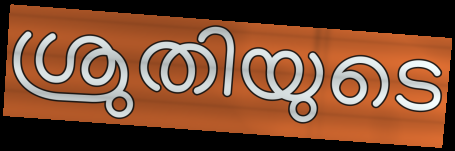
ശ്രുതിയുടെ